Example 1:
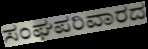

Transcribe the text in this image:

ಸಂಘಪರಿವಾರದ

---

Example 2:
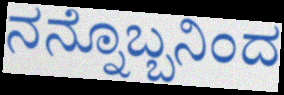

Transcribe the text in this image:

ನನ್ನೊಬ್ಬನಿಂದ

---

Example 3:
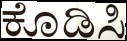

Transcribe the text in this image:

ಕೊಡಿಸಿ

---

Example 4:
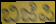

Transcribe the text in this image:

ಬಿಜೆಪಿ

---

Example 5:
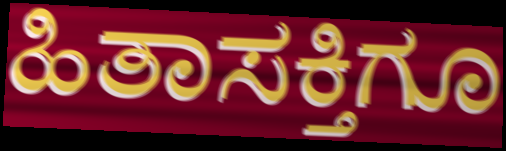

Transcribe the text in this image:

ಹಿತಾಸಕ್ತಿಗೂ